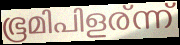
ഭൂമിപിളര്ന്ന്